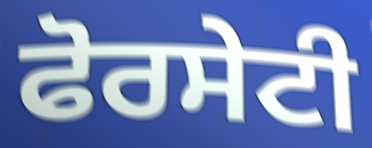
ਫੋਰਸੇਟੀ